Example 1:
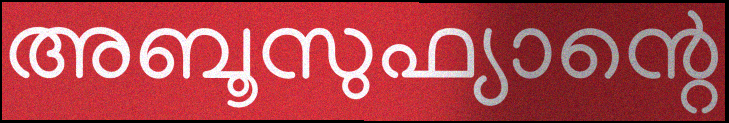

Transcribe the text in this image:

അബൂസുഫ്യാന്റെ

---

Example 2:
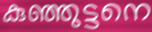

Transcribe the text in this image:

കുഞ്ഞുട്ടനെ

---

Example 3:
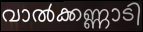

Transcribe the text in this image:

വാൽക്കണ്ണാടി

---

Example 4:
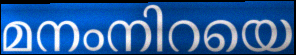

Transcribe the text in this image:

മനംനിറയെ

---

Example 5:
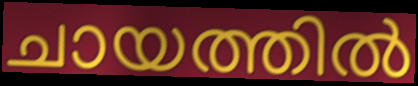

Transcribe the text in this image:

ചായത്തിൽ